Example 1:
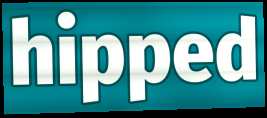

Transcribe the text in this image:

hipped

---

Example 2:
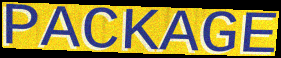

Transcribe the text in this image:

PACKAGE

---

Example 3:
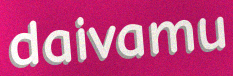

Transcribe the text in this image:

daivamu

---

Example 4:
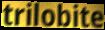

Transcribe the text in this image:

trilobite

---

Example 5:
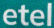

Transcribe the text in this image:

etel